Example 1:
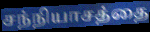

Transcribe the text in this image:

சந்நியாசத்தை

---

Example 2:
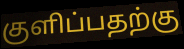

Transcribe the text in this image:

குளிப்பதற்கு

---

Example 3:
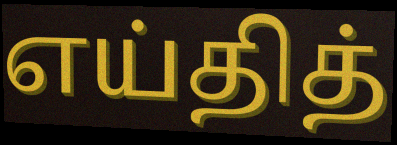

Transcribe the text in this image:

எய்தித்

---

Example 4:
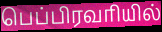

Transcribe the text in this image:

பெப்பிரவரியில்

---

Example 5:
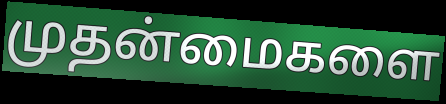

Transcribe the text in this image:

முதன்மைகளை